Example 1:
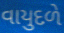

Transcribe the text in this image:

વાયુદળે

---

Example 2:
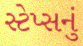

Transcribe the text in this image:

સ્ટેપ્સનું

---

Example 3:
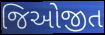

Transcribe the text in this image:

જિઓજીત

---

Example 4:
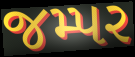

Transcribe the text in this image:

જમ્પર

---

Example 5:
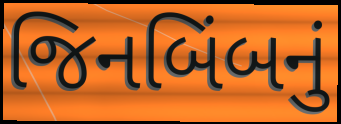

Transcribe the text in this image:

જિનબિંબનું